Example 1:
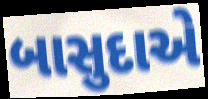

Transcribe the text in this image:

બાસુદાએ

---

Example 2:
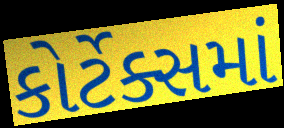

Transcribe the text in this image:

કોર્ટેક્સમાં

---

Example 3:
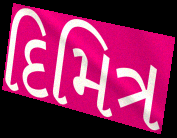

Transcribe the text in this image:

દિમિત્ર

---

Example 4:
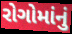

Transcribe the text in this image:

રોગોમાંનું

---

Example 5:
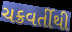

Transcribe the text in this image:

ચક્રવર્તીથી